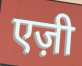
एज़ी